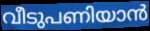
വീടുപണിയാൻ